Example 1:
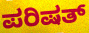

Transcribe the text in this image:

ಪರಿಷತ್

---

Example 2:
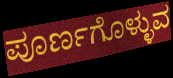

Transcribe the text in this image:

ಪೂರ್ಣಗೊಳ್ಳುವ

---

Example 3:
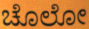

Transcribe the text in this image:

ಚೊಲೋ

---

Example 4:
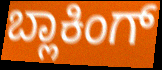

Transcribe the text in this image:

ಬ್ಲಾಕಿಂಗ್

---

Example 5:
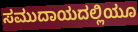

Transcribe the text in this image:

ಸಮುದಾಯದಲ್ಲಿಯೂ